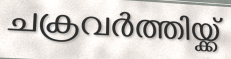
ചക്രവർത്തിയ്ക്ക്